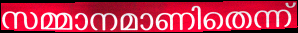
സമ്മാനമാണിതെന്ന്